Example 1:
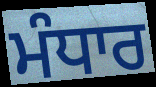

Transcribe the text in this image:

ਮੰਧਾਰ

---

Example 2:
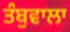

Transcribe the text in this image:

ਤੰਬੁਵਾਲਾ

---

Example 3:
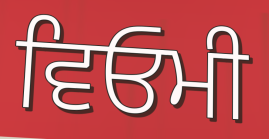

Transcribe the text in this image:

ਵਿਓਮੀ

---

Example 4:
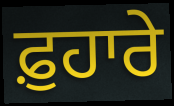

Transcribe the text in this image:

ਫ਼ੁਹਾਰੇ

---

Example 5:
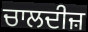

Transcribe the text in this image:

ਚਾਲਦੀਜ਼